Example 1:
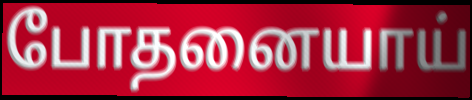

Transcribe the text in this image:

போதனையாய்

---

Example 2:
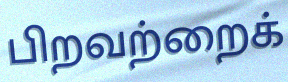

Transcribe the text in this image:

பிறவற்றைக்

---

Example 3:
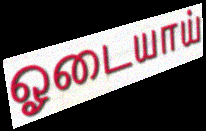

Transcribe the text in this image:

ஓடையாய்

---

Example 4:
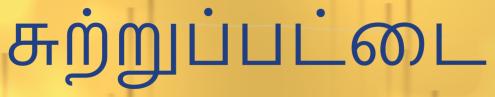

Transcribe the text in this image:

சுற்றுப்பட்டை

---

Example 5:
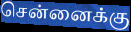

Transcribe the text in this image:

சென்னைக்கு